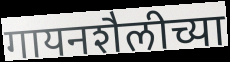
गायनशैलीच्या